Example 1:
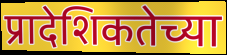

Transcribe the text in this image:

प्रादेशिकतेच्या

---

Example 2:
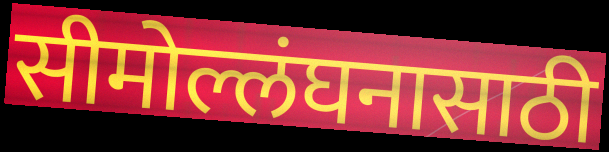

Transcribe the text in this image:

सीमोल्लंघनासाठी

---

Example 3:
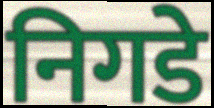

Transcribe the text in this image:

निगडे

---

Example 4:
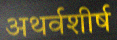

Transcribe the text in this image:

अथर्वशीर्ष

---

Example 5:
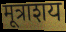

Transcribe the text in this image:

मूत्राशय